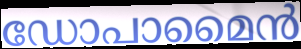
ഡോപാമൈൻ